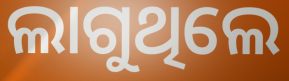
ଲାଗୁଥିଲେ